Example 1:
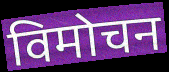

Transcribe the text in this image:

विमोचन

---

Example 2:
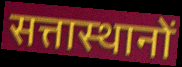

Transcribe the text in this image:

सत्तास्थानों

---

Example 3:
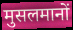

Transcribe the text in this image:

मुसलमानों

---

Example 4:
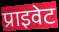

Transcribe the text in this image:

प्राइवेट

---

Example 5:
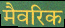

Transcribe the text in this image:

मैवरिक